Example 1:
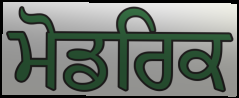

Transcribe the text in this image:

ਮੋਡਰਿਕ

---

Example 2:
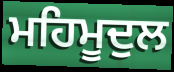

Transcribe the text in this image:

ਮਹਿਮੂਦੁਲ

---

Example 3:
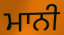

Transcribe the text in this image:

ਮਾਨੀ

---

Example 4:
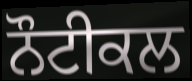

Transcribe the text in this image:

ਨੌਟੀਕਲ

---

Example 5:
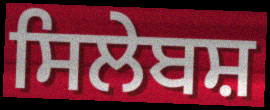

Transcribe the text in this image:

ਸਿਲੇਬਸ਼